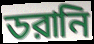
ডরানি